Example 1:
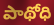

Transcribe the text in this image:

పాథోధి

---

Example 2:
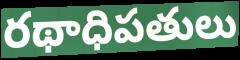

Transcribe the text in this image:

రథాధిపతులు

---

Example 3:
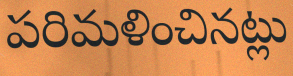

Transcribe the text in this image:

పరిమళించినట్లు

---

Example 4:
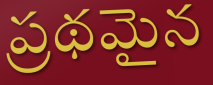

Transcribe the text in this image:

ప్రథమైన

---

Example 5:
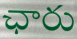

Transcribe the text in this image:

ఛారు